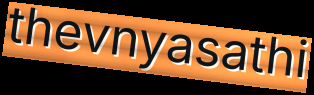
thevnyasathi